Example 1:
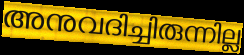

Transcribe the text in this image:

അനുവദിച്ചിരുന്നില്ല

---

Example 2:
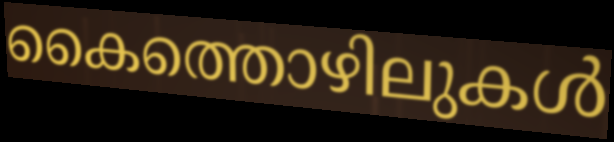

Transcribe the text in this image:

കൈത്തൊഴിലുകൾ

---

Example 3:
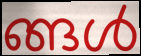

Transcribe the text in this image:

ങ്ങൾ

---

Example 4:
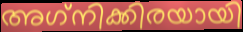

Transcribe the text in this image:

അഗ്‌നിക്കിരയായി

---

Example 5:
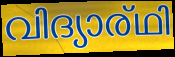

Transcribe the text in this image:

വിദ്യാര്ഥി